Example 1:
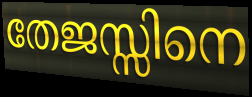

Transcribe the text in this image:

തേജസ്സിനെ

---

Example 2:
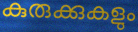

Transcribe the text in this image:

കുരുക്കുകളും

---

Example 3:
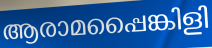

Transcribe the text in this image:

ആരാമപ്പൈങ്കിളി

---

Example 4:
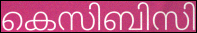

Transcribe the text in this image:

കെസിബിസി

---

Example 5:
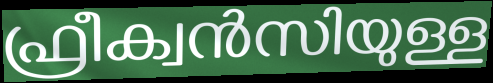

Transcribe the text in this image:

ഫ്രീക്വൻസിയുള്ള